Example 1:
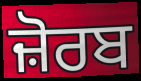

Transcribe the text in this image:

ਜ਼ੋਰਬ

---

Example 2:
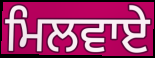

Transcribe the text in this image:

ਮਿਲਵਾਏ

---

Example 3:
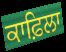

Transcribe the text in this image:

ਕਾਫ਼ਿਲਾ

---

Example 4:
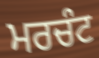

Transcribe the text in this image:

ਮਰਚੰਟ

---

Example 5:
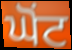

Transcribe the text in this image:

ਘੋਂਟ